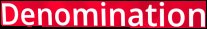
Denomination